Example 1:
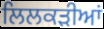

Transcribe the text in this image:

ਲਿਲਕੜੀਆਂ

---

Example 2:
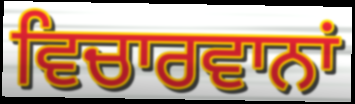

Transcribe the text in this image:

ਵਿਚਾਰਵਾਨਾਂ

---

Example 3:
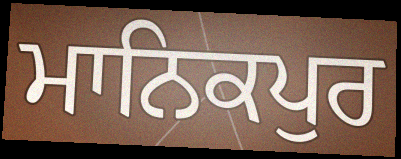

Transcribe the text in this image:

ਮਾਨਿਕਪੁਰ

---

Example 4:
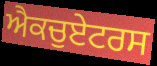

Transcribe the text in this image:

ਐਕਚੁਏਟਰਸ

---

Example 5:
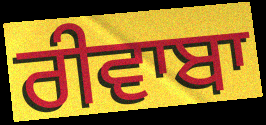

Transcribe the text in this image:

ਰੀਵਾਬਾ